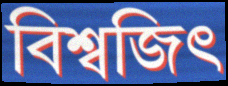
বিশ্বজিৎ